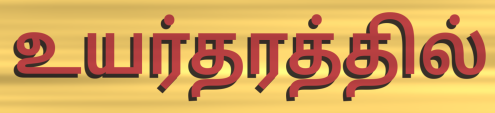
உயர்தரத்தில்